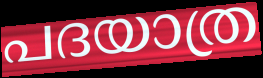
പദയാത്ര